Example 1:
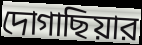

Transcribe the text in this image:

দোগাছিয়ার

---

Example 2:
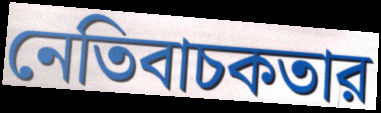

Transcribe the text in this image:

নেতিবাচকতার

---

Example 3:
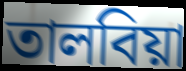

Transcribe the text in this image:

তালবিয়া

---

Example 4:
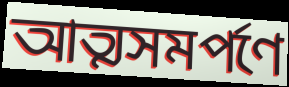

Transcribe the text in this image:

আত্মসমর্পণে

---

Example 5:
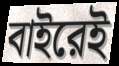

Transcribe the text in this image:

বাইরেই